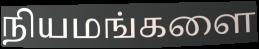
நியமங்களை